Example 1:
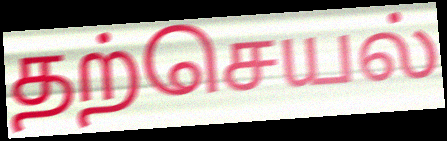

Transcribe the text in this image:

தற்செயல்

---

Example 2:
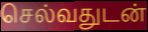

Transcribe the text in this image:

செல்வதுடன்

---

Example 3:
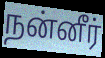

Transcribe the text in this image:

நன்னீர்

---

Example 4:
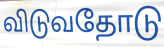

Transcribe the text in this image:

விடுவதோடு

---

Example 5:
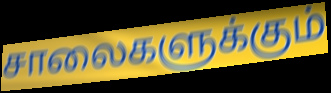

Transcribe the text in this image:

சாலைகளுக்கும்